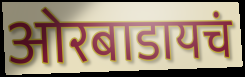
ओरबाडायचं